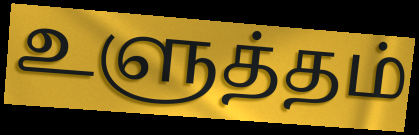
உளுத்தம்